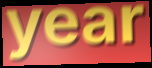
year